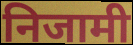
निजामी